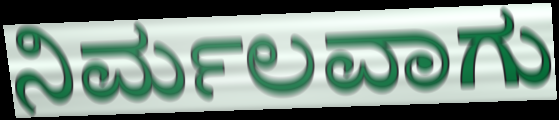
ನಿರ್ಮಲವಾಗು